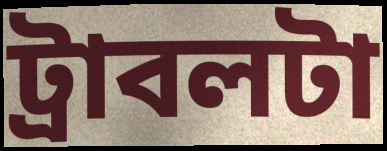
ট্রাবলটা